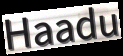
Haadu